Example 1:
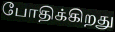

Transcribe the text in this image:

போதிக்கிறது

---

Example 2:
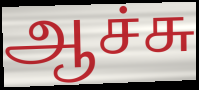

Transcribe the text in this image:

ஆச்சு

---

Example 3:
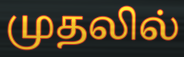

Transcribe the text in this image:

முதலில்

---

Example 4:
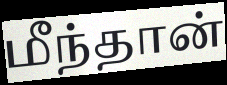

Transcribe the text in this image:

மீந்தான்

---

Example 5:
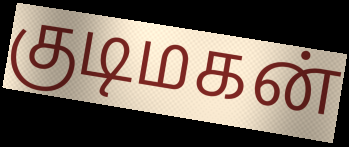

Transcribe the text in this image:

குடிமகன்